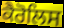
ਕੈਰੋਲਿਸ